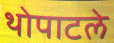
थोपाटले